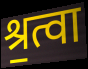
श्र॒त्वा